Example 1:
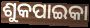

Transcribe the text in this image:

ଶୁକପାଇକା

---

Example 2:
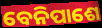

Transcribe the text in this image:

ବେନିପାଶେ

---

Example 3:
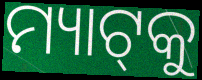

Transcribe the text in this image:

ମ୍ୟାଟ୍‌କୁ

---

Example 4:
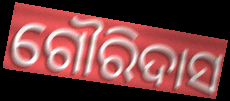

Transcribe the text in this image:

ଗୌରିଦାସ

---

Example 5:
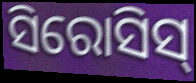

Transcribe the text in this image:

ସିରୋସିସ୍